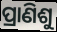
ପ୍ରାଣିଶୁ